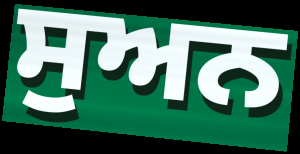
ਸੁਅਨ